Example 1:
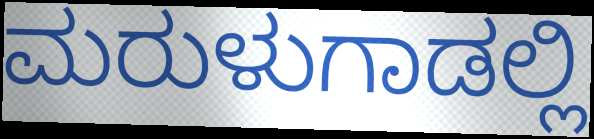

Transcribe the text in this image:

ಮರುಳುಗಾಡಲ್ಲಿ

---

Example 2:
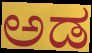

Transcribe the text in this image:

ಅಡ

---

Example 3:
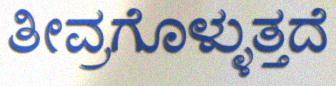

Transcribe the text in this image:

ತೀವ್ರಗೊಳ್ಳುತ್ತದೆ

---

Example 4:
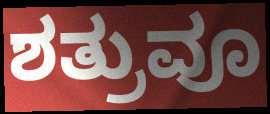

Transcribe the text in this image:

ಶತ್ರುವೂ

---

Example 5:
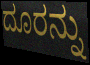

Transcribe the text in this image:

ದೂರನ್ನು